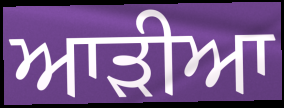
ਆੜੀਆ